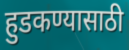
हुडकण्यासाठी